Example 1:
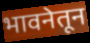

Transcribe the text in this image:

भावनेतून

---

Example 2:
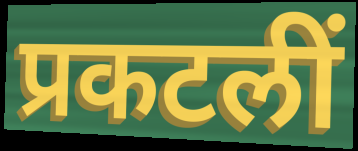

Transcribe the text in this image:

प्रकटलीं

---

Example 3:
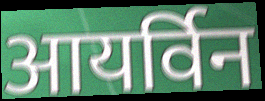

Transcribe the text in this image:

आयर्विन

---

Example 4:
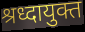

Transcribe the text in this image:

श्रध्दायुक्त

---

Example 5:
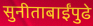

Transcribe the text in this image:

सुनीताबाईंपुढे